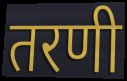
तरणी